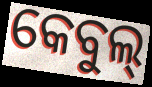
କେବୁଲ୍